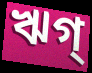
ঋগ্